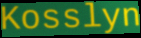
Kosslyn